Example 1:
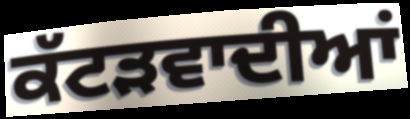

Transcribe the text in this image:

ਕੱਟੜਵਾਦੀਆਂ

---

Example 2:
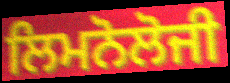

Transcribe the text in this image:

ਲਿਮਨੋਲੋਜੀ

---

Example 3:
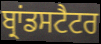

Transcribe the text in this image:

ਬ੍ਰਾਂਡਸਟੈਟਰ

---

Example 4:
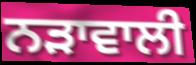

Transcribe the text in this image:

ਨੜਾਵਾਲੀ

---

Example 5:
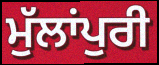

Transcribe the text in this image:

ਮੁੱਲਾਂਪੁਰੀ